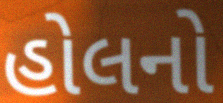
હોલનો